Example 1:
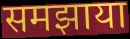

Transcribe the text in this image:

समझाया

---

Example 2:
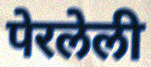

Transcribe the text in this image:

पेरलेली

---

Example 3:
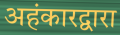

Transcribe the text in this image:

अहंकारद्वारा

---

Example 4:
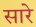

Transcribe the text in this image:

सारे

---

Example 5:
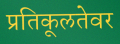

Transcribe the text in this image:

प्रतिकूलतेवर